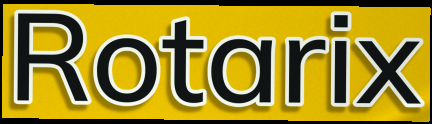
Rotarix